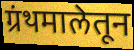
ग्रंथमालेतून